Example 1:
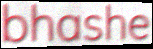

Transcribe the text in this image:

bhashe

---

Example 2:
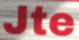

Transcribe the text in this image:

Jte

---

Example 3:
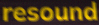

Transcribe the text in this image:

resound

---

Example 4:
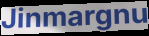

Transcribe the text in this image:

Jinmargnu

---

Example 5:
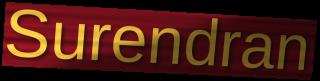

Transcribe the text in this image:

Surendran